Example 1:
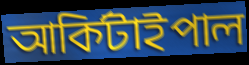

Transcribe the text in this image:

আৰ্কিটাইপাল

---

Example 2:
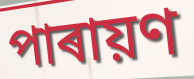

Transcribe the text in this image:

পাৰায়ণ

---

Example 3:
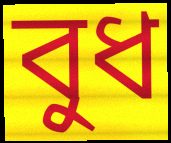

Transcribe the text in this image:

বুধ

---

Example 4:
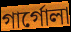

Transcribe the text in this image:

গাৰ্গোলা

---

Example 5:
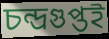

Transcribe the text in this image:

চন্দ্ৰগুপ্তই